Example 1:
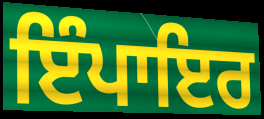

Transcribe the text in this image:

ਇੰਪਾਇਰ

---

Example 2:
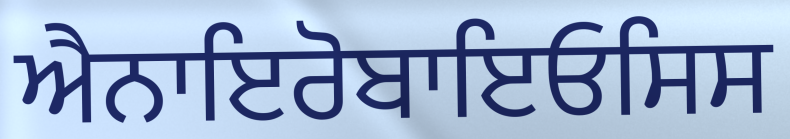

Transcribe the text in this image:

ਐਨਾਇਰੋਬਾਇਓਸਿਸ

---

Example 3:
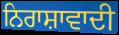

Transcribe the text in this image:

ਨਿਰਾਸ਼ਾਵਾਦੀ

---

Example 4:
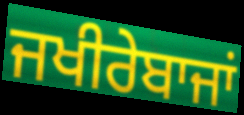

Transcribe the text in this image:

ਜਖੀਰੇਬਾਜਾਂ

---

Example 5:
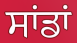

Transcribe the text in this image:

ਸਾਂਡਾਂ